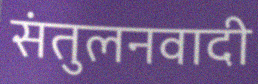
संतुलनवादी